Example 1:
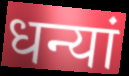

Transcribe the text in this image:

धन्यां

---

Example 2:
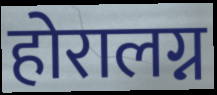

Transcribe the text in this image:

होरालग्न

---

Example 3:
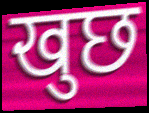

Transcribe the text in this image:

खुछ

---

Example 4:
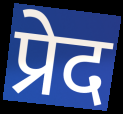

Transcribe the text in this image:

प्रेद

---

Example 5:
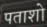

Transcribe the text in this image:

पताशो